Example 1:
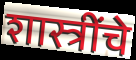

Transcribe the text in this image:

शास्त्रींचे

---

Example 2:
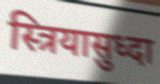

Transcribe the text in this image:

स्त्रियासुध्दा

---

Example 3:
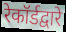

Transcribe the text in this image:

रेकॉर्डद्वारे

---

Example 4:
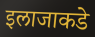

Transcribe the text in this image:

इलाजाकडे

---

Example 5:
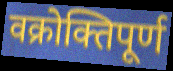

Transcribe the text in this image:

वक्रोक्तिपूर्ण